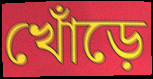
খোঁড়ে